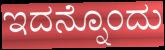
ಇದನ್ನೊಂದು